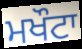
ਮਖੌਟਾ